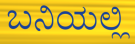
ಬನಿಯಲ್ಲಿ